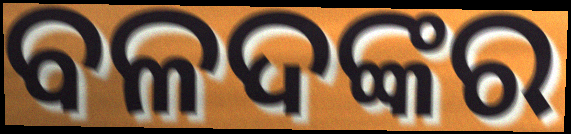
ବଳଦଙ୍କର